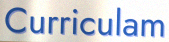
Curriculam